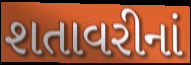
શતાવરીનાં